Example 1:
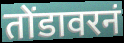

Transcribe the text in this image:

तोंडावरनं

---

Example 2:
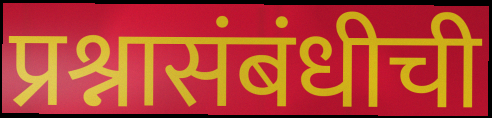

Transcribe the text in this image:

प्रश्नासंबंधीची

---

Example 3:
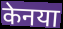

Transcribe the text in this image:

केनया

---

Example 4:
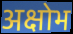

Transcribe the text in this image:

अक्षोभ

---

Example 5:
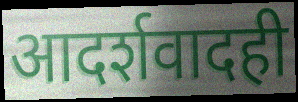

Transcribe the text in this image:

आदर्शवादही